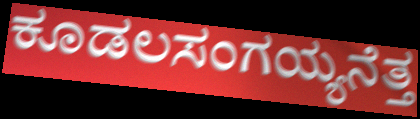
ಕೂಡಲಸಂಗಯ್ಯನೆತ್ತ